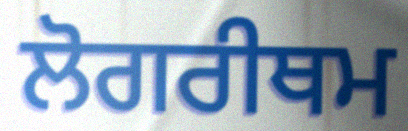
ਲੋਗਰੀਥਮ